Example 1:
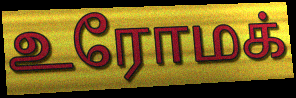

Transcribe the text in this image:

உரோமக்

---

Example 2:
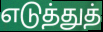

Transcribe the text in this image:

எடுத்துத்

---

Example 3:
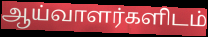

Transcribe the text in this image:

ஆய்வாளர்களிடம்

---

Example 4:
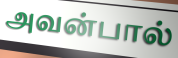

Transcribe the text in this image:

அவன்பால்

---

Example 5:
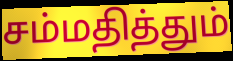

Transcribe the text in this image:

சம்மதித்தும்